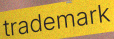
trademark